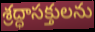
శ్రద్ధాసక్తులను